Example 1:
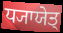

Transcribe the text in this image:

ਧ੍ਯਾਯੇਤ੍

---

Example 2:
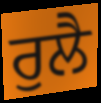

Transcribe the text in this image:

ਰੁਲੈ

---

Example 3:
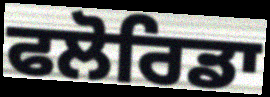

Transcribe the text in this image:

ਫਲੋਰਿਡਾ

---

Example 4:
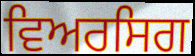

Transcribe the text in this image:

ਵਿਅਰਸਿਗ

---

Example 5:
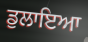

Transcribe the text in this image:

ਡੁਲਾਇਆ